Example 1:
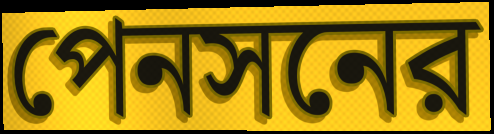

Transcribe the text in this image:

পেনসনের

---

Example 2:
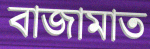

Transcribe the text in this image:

বাজামাত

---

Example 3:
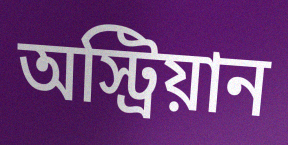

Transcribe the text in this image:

অস্ট্রিয়ান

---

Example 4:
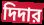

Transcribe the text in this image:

দিদার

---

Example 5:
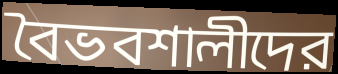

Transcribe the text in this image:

বৈভবশালীদের